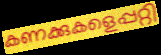
കണക്കുകളെപ്പറ്റി